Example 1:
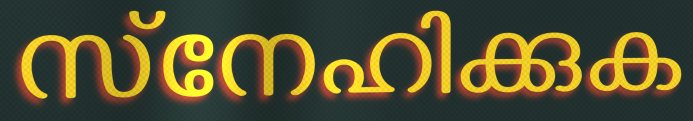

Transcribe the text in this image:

സ്‌നേഹിക്കുക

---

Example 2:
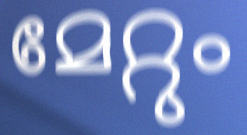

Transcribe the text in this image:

മേറ്റും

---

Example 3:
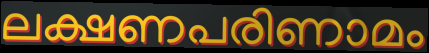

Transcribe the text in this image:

ലക്ഷണപരിണാമം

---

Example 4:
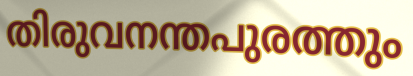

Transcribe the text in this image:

തിരുവനന്തപുരത്തും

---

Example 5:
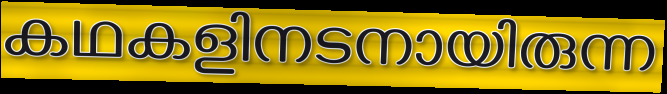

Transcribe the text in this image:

കഥകളിനടനായിരുന്ന